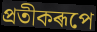
প্ৰতীকৰূপে